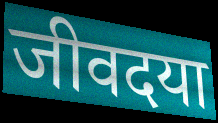
जीवदया